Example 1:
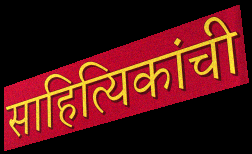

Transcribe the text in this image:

साहित्यिकांची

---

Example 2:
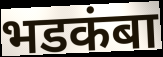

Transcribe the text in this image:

भडकंबा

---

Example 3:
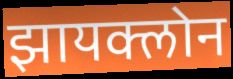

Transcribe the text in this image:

झायक्लोन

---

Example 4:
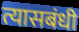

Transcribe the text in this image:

त्यासबंधी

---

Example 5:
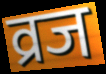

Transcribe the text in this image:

व्रज